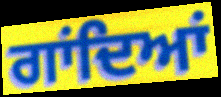
ਗਾਂਦਿਆਂ